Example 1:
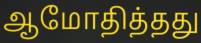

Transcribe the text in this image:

ஆமோதித்தது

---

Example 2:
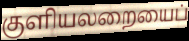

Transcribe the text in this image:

குளியலறையைப்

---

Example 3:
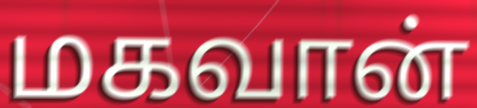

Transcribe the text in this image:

மகவான்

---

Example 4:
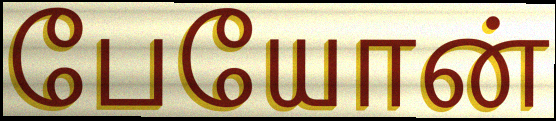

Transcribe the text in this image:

பேயோன்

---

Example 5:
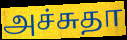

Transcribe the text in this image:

அச்சுதா